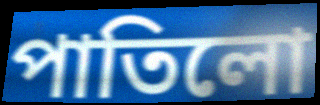
পাতিলো